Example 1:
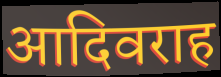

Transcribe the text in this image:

आदिवराह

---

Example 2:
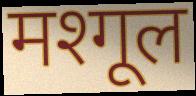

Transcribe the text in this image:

मश्गूल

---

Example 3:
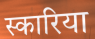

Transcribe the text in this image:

स्कारिया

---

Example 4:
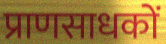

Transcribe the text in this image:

प्राणसाधकों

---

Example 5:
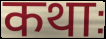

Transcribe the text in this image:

कथाः